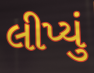
લીપ્યું